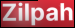
Zilpah